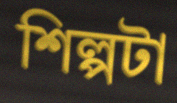
শিল্পটা